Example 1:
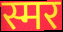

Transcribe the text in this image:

स्मर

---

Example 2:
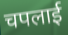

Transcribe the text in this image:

चपलाई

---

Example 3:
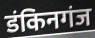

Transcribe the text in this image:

डंकिनगंज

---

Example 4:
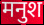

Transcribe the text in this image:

मनुश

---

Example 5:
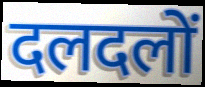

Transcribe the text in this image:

दलदलों